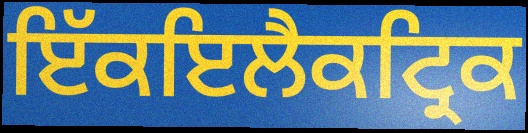
ਇੱਕਇਲੈਕਟ੍ਰਿਕ